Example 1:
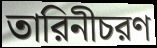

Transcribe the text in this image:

তারিনীচরণ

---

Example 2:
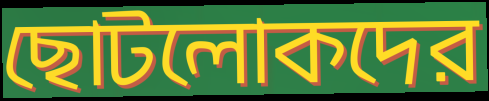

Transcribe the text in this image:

ছোটলোকদের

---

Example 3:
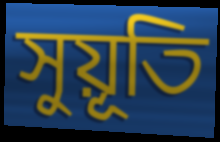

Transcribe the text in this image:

সুয়ূতি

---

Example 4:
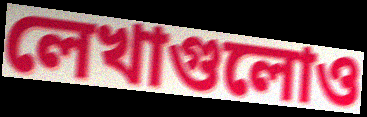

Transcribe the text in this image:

লেখাগুলোও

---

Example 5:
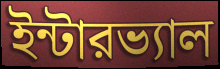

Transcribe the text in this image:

ইন্টারভ্যাল